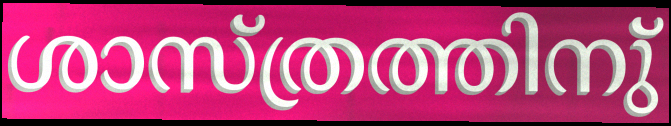
ശാസ്ത്രത്തിനു്